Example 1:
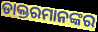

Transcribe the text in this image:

ଡାକ୍ତରମାନଙ୍କର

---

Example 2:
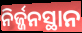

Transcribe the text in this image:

ନିର୍ଜ୍ଜନସ୍ଥାନ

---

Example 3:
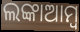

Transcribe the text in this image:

ଲଙ୍କାଆମ୍ବ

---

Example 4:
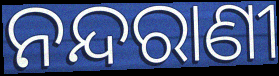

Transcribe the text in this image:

ନନ୍ଦରାଣୀ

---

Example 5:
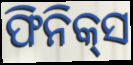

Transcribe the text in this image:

ଫିନିକ୍‌ସ